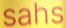
sahs